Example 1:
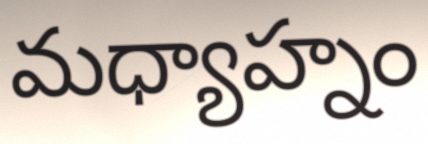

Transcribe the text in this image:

మధ్యాహ్నం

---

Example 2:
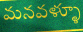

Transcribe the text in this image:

మనవళ్ళూ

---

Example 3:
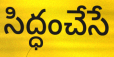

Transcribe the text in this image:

సిద్ధంచేసే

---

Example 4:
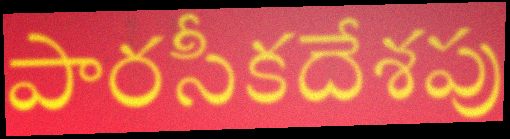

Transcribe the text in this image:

పారసీకదేశపు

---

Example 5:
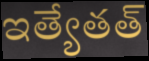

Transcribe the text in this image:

ఇత్యేతత్